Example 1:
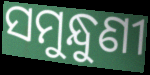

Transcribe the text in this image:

ସମୁନ୍ଧୁଣୀ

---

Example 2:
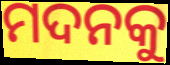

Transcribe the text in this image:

ମଦନକୁ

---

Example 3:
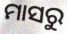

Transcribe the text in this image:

ମାସରୁ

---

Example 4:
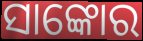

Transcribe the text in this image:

ସାଙ୍କୋର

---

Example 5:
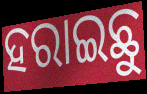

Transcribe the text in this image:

ହରାଇଛୁ